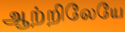
ஆற்றிலேயே